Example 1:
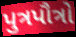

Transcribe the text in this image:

પુત્રપૌત્રો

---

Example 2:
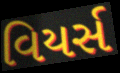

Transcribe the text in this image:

વિયર્સ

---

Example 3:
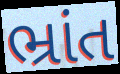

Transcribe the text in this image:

ભ્રાંત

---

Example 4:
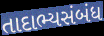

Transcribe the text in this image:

તાદાભ્યસંબંધ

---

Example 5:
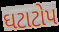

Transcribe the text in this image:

ઘટાટોપ